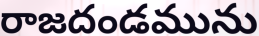
రాజదండమును